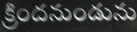
క్రిందనుండును